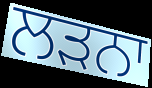
ਲੜਨਾ